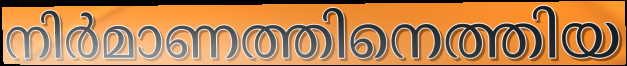
നിർമാണത്തിനെത്തിയ